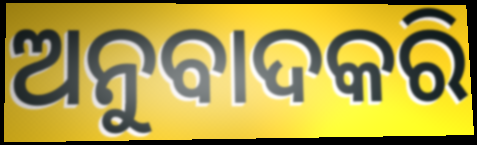
ଅନୁବାଦକରି